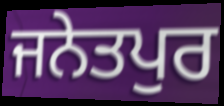
ਜਨੇਤਪੁਰ